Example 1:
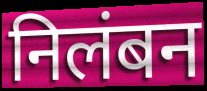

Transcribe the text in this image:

निलंबन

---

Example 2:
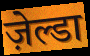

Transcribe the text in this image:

ज़ेल्डा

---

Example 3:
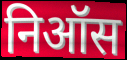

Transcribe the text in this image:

निऑस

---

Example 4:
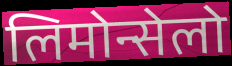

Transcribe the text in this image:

लिमोन्सेलो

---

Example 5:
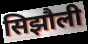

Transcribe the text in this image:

सिझौली